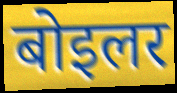
बोइलर